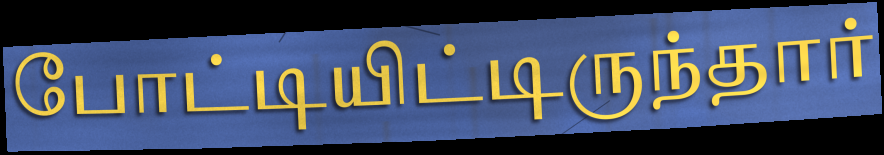
போட்டியிட்டிருந்தார்